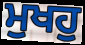
ਮੁਖਹੁ